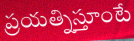
ప్రయత్నిస్తూంటే